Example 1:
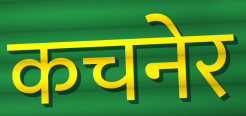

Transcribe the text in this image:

कचनेर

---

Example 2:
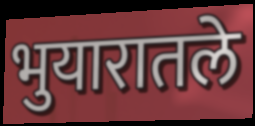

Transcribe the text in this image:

भुयारातले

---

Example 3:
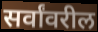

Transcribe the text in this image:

सर्वांवरील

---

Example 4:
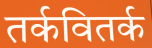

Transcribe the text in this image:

तर्कवितर्क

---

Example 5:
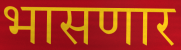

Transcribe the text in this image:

भासणार